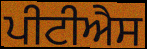
ਪੀਟੀਐਸ